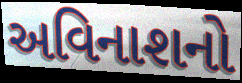
અવિનાશનો